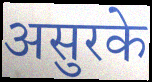
असुरके